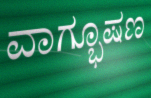
ವಾಗ್ಭೂಷಣ